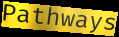
Pathways